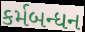
કર્મબન્ધન